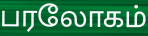
பரலோகம்